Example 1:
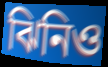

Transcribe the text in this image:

ঝিনিও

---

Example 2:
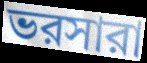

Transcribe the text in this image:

ভরসারা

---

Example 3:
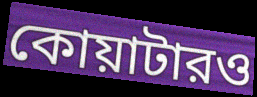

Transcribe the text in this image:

কোয়াটারও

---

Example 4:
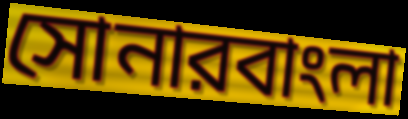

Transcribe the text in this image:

সোনারবাংলা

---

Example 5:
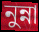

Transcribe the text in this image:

নুন্না